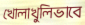
খোলাখুলিভাবে